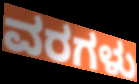
ವರಗಳು